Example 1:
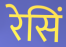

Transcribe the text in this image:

रेसिं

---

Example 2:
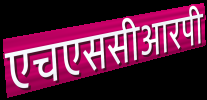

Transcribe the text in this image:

एचएससीआरपी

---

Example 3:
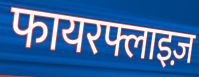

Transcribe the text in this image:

फायरफ्लाइज़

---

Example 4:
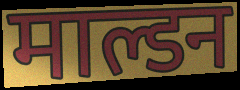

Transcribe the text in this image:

माल्डन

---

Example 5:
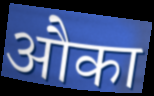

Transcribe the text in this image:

औका